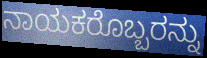
ನಾಯಕರೊಬ್ಬರನ್ನು